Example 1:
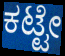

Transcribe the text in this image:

ಕಟ್ಟೇ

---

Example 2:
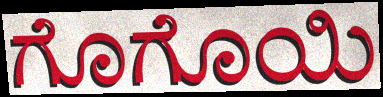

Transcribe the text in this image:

ಗೊಗೊಯಿ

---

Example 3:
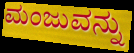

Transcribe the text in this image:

ಮಂಜುವನ್ನು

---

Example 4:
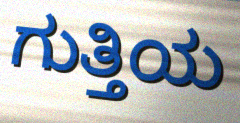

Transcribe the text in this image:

ಗುತ್ತಿಯ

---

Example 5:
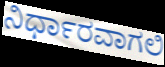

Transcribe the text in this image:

ನಿರ್ಧಾರವಾಗಲಿ